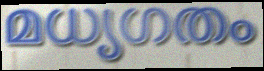
മധ്യഗതം